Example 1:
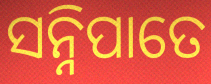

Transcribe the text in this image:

ସନ୍ନିପାତେ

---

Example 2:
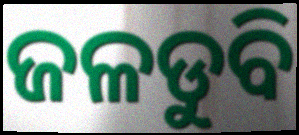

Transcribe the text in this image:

ଜଳଡୁବି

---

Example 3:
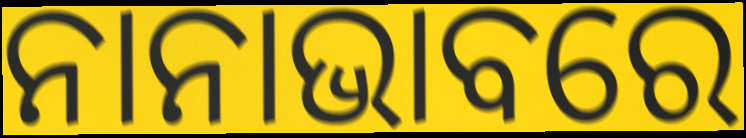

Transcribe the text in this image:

ନାନାଭାବରେ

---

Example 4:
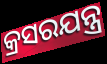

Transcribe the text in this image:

କ୍ରସରଯନ୍ତ୍ର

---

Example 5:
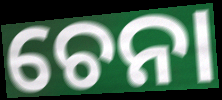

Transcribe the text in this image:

ଚେନା